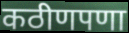
कठीणपणा